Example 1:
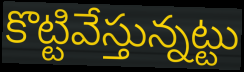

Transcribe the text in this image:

కొట్టివేస్తున్నట్టు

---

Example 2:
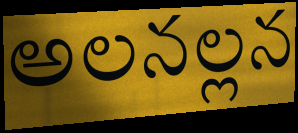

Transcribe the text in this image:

అలనల్లన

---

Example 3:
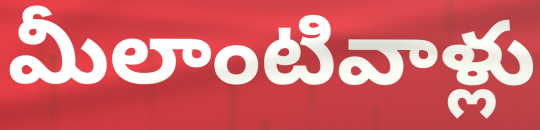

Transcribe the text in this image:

మీలాంటివాళ్లు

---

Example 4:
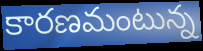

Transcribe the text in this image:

కారణమంటున్న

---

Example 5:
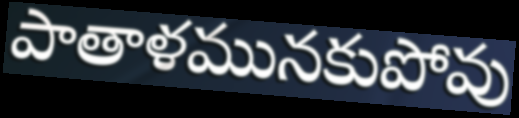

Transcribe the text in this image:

పాతాళమునకుపోవు